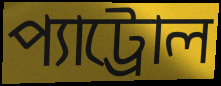
প্যাট্রোল